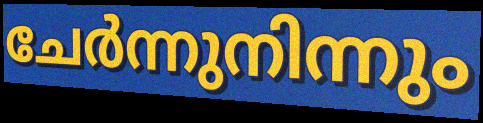
ചേർന്നുനിന്നും